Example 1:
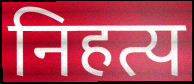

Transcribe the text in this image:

निहत्य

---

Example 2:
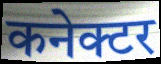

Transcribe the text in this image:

कनेक्टर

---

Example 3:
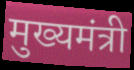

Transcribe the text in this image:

मुख्यमंत्री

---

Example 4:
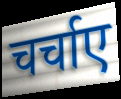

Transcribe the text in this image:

चर्चाए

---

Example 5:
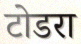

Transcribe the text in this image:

टोडरा